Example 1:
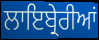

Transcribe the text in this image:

ਲਾਇਬ੍ਰੇਰੀਆਂ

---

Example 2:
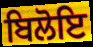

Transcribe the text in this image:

ਬਿਲੋਇ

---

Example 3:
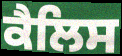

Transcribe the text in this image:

ਕੈਲਿਸ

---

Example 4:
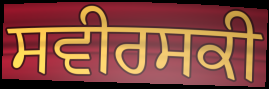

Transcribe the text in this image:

ਸਵੀਰਸਕੀ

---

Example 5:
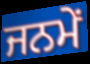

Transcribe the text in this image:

ਜਨਮੇਂ